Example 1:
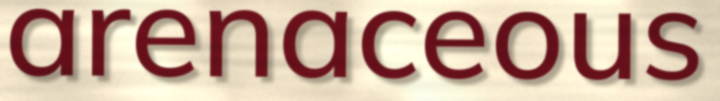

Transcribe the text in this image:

arenaceous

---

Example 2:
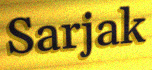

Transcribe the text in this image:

Sarjak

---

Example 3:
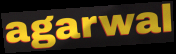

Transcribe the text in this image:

agarwal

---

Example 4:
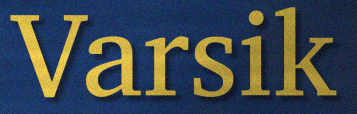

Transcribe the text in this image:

Varsik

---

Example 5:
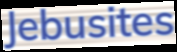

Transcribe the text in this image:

Jebusites